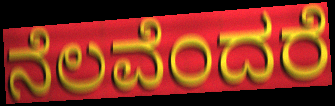
ನೆಲವೆಂದರೆ